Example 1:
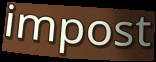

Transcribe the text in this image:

impost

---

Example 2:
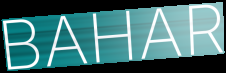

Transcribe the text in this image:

BAHAR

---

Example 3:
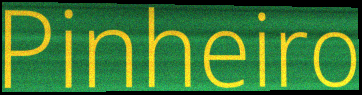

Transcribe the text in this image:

Pinheiro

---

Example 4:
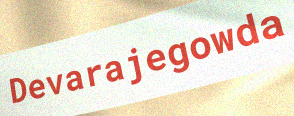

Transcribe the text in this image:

Devarajegowda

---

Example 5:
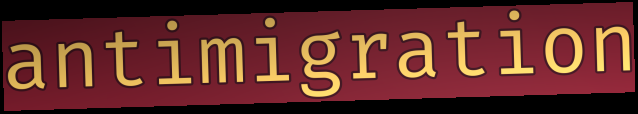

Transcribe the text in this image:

antimigration